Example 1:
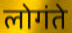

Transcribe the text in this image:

लोगंते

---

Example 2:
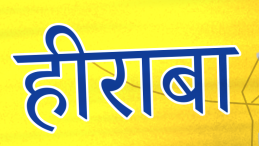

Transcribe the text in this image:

हीराबा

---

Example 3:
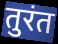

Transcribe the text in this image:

तुरंत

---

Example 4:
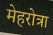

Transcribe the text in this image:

मेहरोत्रा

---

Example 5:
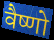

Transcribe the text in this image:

वैष्णो